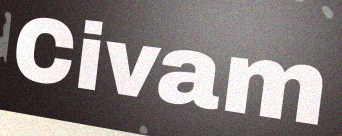
Civam